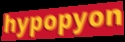
hypopyon